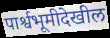
पार्श्वभूमीदेखील